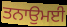
ਤਨਾਉਮਈ